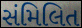
સંમિલિત